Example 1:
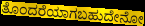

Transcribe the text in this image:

ತೊಂದರೆಯಾಗಬಹುದೇನೋ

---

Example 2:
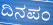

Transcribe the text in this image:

ದಿನಪಂ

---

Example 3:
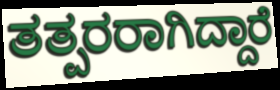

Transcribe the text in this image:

ತತ್ಪರರಾಗಿದ್ದಾರೆ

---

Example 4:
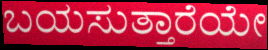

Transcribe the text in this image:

ಬಯಸುತ್ತಾರೆಯೇ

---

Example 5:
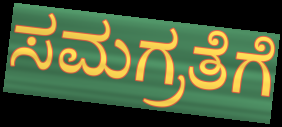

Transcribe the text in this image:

ಸಮಗ್ರತೆಗೆ